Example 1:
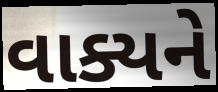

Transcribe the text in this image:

વાક્યને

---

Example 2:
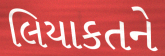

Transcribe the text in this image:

લિયાકતને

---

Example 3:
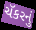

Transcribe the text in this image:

ચૅકરનું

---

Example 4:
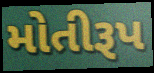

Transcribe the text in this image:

મોતીરૂપ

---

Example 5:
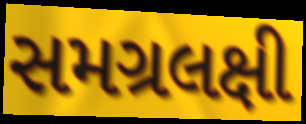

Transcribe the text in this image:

સમગ્રલક્ષી